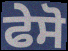
ਫੇਸੋ